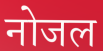
नोजल